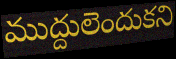
ముద్దులెందుకని